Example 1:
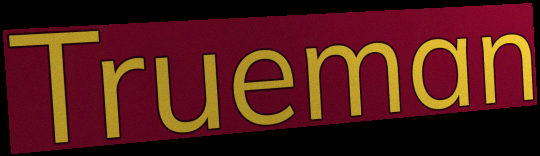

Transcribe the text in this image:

Trueman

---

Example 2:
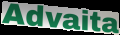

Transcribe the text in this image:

Advaita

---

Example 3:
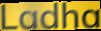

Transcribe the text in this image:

Ladha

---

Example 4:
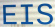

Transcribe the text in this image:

EIS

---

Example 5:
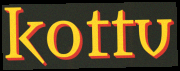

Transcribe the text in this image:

kottu